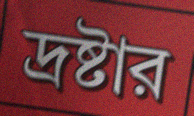
দ্রষ্টার